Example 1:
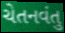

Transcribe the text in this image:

ચેતનવંતુ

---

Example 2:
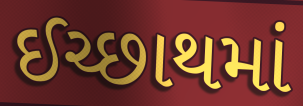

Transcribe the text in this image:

ઈચ્છાથમાં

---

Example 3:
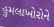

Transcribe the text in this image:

હુમલાખોરોને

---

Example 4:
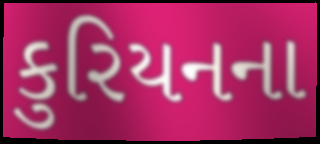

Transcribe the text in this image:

કુરિયનના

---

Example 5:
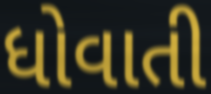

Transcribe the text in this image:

ધોવાતી